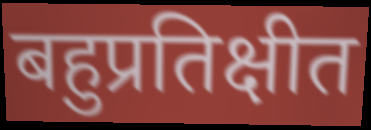
बहुप्रतिक्षीत